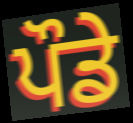
ਪੌਡੇ